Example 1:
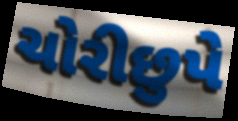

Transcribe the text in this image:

ચોરીછુપે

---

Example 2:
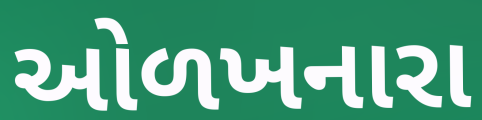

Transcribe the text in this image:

ઓળખનારા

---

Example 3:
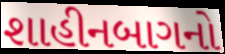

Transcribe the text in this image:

શાહીનબાગનો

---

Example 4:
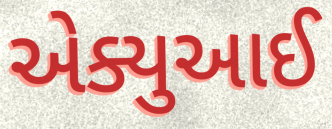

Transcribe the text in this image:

એક્યુઆઈ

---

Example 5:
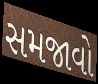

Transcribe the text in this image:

સમજાવો